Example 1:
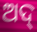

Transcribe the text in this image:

ଅଦ୍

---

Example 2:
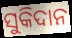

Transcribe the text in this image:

ସୁକିଦାନ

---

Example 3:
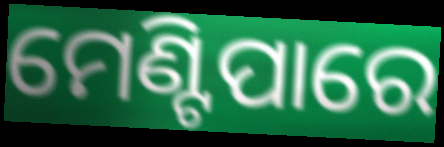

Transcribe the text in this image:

ମେଣ୍ଟିପାରେ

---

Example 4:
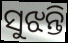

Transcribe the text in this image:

ସୁଝନ୍ତି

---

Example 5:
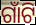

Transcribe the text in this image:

ଗାଁଟି